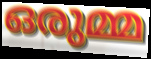
ഒരുമ്മ